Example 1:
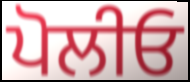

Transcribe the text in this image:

ਪੋਲੀਓ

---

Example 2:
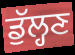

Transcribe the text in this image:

ਡੁੱਲ੍ਹਣ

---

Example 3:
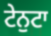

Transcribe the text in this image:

ਟੇਨੁਟਾ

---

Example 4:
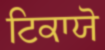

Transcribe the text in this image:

ਟਿਕਾਯੋ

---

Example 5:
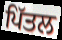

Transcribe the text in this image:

ਪਿੱਤਲ